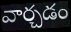
వార్చడం